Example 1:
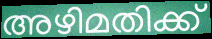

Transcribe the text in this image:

അഴിമതിക്ക്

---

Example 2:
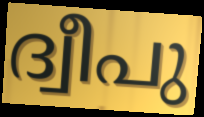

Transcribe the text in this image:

ദ്വീപു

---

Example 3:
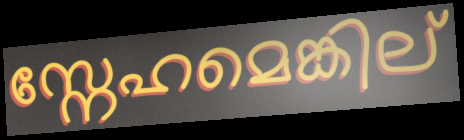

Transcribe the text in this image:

സ്നേഹമെങ്കില്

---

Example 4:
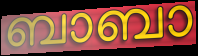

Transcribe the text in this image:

ബാബാ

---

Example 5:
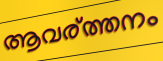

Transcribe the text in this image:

ആവര്ത്തനം